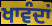
ਖਾਵੰਦਾਂ